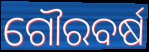
ଗୌରବର୍ଷ